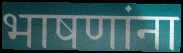
भाषणांना